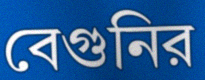
বেগুনির